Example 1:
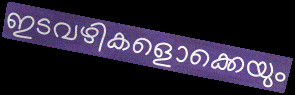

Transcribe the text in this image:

ഇടവഴികളൊക്കെയും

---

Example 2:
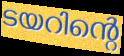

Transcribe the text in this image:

ടയറിന്റെ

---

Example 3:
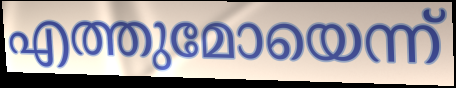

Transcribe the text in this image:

എത്തുമോയെന്ന്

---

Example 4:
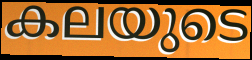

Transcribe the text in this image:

കലയുടെ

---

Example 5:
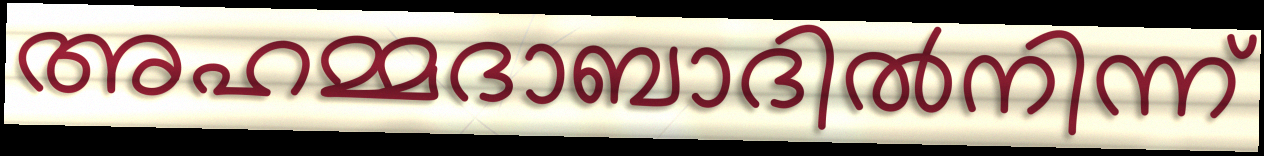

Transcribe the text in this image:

അഹമ്മദാബാദിൽനിന്ന്